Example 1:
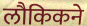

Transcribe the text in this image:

लौकिकने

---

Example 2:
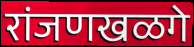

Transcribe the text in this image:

रांजणखळगे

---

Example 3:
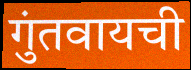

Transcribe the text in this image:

गुंतवायची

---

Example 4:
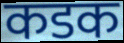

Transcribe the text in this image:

कडक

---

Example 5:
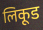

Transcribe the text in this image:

लिकूड